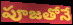
పూజతోనే